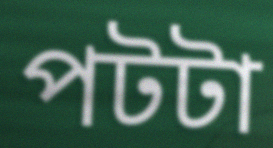
পটটা